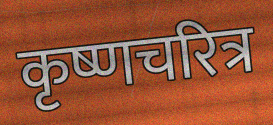
कृष्णचरित्र